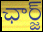
ఛార్జ్